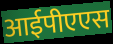
आईपीएएस